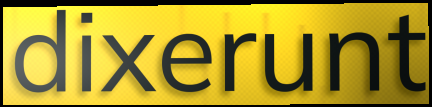
dixerunt